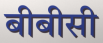
बीबीसी